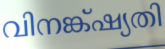
വിനങ്ക്ഷ്യതി